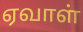
ஏவாள்